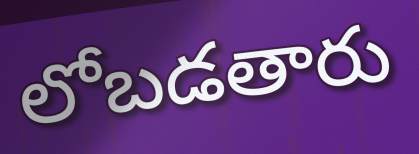
లోబడతారు